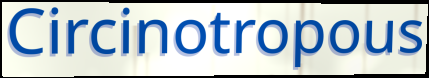
Circinotropous